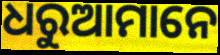
ଧରୁଆମାନେ